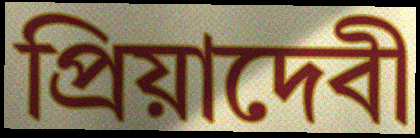
প্রিয়াদেবী